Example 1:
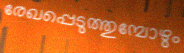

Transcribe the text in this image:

രേഖപ്പെടുത്തുമ്പോഴും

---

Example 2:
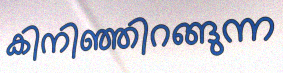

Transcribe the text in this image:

കിനിഞ്ഞിറങ്ങുന്ന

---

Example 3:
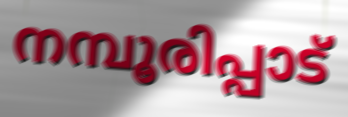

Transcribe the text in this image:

നമ്പൂരിപ്പാട്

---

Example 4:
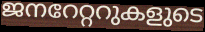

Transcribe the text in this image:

ജനറേറ്ററുകളുടെ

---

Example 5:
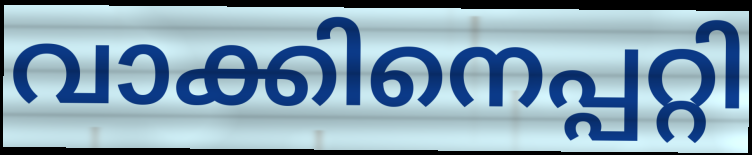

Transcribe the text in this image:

വാക്കിനെപ്പറ്റി